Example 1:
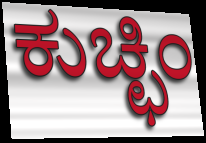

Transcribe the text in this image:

ಕುಚ್ಛಿಂ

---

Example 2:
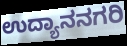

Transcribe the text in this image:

ಉದ್ಯಾನನಗರಿ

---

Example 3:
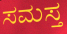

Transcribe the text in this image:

ಸಮಸ್ತ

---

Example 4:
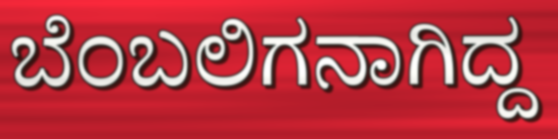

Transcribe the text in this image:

ಬೆಂಬಲಿಗನಾಗಿದ್ದ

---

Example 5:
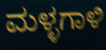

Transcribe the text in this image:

ಮಳ್ಳಗಾಳಿ